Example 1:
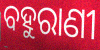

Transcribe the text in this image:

ବହୁରାଣୀ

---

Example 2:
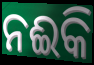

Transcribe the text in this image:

ନଈକି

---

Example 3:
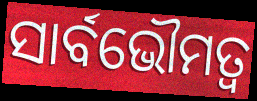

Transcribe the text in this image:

ସାର୍ବଭୌମତ୍ଵ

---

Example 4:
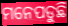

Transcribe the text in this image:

ମନେପଡୁଛି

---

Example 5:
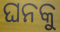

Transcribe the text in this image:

ଘନକୁ